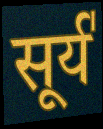
सूर्य॑